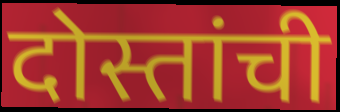
दोस्तांची